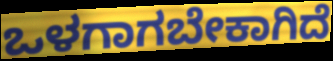
ಒಳಗಾಗಬೇಕಾಗಿದೆ